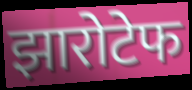
झारोटेफ